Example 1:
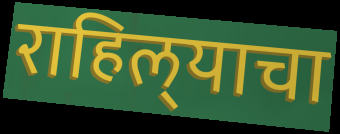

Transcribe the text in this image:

राहिल्याचा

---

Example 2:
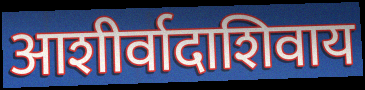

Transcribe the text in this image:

आशीर्वादाशिवाय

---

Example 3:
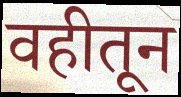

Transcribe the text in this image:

वहीतून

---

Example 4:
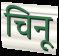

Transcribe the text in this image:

चिनू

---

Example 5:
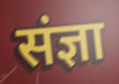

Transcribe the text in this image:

संज्ञा